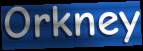
Orkney